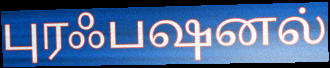
புரஃபஷனல்